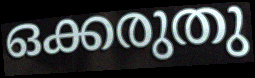
ഒക്കരുതു